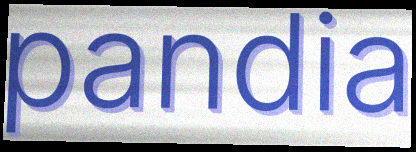
pandia